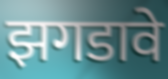
झगडावे